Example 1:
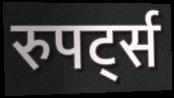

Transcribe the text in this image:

रुपर्ट्स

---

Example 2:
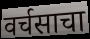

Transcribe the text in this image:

वर्चसाचा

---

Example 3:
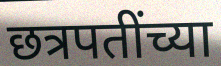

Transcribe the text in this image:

छत्रपतींच्या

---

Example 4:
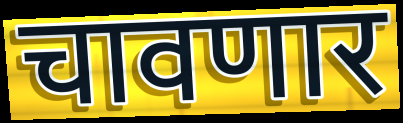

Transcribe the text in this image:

चावणार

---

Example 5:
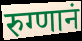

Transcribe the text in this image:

रुग्णानं